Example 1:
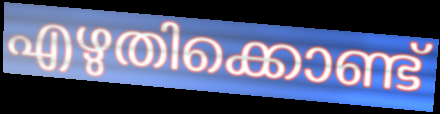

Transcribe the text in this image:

എഴുതിക്കൊണ്ട്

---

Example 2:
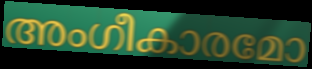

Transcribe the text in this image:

അംഗീകാരമോ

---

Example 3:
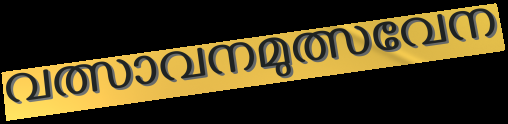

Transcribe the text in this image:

വത്സാവനമുത്സവേന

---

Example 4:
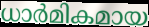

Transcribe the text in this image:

ധാർമികമായ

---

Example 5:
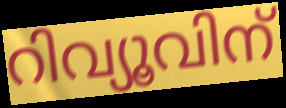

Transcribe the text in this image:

റിവ്യൂവിന്